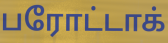
பரோட்டாக்